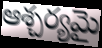
ఆశ్చర్యమై